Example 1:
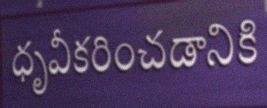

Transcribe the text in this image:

ధృవీకరించడానికి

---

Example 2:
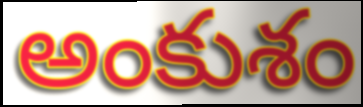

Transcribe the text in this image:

అంకుశం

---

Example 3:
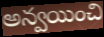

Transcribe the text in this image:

అన్వయించి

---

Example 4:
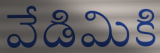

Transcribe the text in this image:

వేడిమికి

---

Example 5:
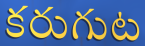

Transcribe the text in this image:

కరుగుట